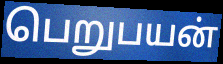
பெறுபயன்